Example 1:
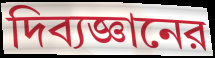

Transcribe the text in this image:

দিব্যজ্ঞানের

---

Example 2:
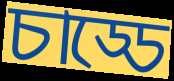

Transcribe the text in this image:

চাড্ডে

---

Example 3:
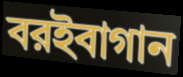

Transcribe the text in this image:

বরইবাগান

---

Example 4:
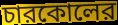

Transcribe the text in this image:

চারকোলের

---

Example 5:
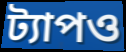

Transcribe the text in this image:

ট্যাপও